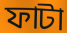
ফাটা